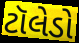
ટૉલેડો